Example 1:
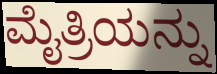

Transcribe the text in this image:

ಮೈತ್ರಿಯನ್ನು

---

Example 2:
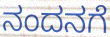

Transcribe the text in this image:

ನಂದನಗೆ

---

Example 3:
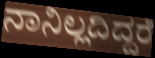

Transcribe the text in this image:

ನಾನಿಲ್ಲದಿದ್ದರೆ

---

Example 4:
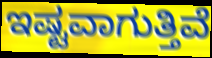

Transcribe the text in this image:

ಇಷ್ಟವಾಗುತ್ತಿವೆ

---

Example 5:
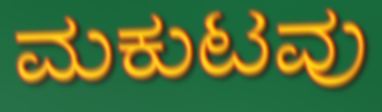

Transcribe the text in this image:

ಮಕುಟವು